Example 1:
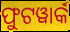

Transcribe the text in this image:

ଫୁଟୱାର୍କ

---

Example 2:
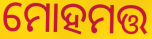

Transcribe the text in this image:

ମୋହମତ୍ତ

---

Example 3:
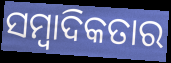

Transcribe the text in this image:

ସମ୍ୱାଦିକତାର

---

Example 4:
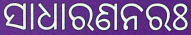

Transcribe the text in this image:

ସାଧାରଣନରଃ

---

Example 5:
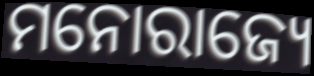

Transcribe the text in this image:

ମନୋରାଜ୍ୟେ